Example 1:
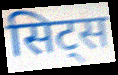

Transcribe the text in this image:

सिट्स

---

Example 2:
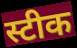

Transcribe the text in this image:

स्टीक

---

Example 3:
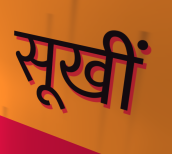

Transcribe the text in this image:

सूखीं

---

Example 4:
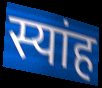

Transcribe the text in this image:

स्यांह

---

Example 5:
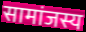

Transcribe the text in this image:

सामांजस्य